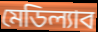
মেডিল্যাব